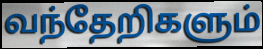
வந்தேறிகளும்